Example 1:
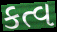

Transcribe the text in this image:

કત્વ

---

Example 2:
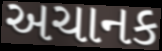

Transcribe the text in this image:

અચાનક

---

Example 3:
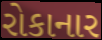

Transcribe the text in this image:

રોકાનાર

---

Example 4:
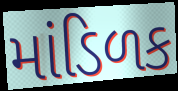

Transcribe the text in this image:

માંડિળક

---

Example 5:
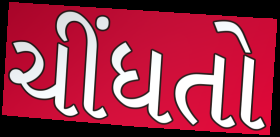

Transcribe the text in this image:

ચીંધતો